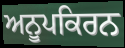
ਅਨੂਪਕਿਰਨ